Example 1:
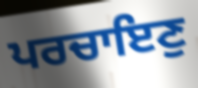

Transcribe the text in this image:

ਪਰਚਾਇਣੁ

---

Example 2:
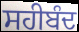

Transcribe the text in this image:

ਸਹੀਬੰਦ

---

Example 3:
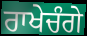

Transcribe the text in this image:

ਰਾਖੇਚੰਗੇ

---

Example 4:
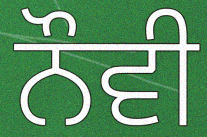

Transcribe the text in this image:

ਨੌਵੀ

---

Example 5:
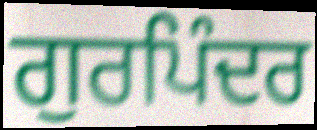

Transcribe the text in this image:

ਗੁਰਪਿੰਦਰ